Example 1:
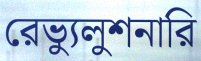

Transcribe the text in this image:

রেভ্যুলুশনারি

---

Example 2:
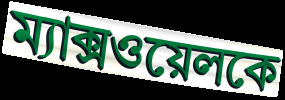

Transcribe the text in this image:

ম্যাক্সওয়েলকে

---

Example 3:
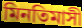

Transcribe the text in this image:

মিনতিমাসী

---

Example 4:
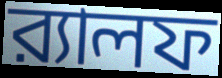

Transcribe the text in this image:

র‍্যালফ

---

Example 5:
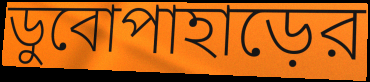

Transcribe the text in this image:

ডুবোপাহাড়ের